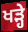
ਖਡ਼੍ਹੇ